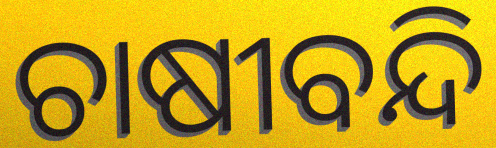
ଚାଷୀବନ୍ଦି